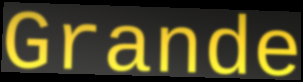
Grande